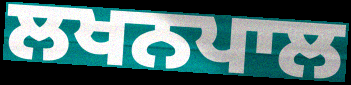
ਲਖਨਪਾਲ